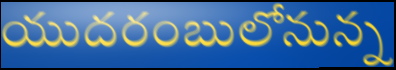
యుదరంబులోనున్న